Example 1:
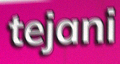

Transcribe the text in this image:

tejani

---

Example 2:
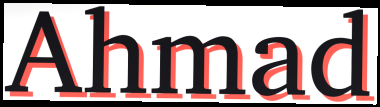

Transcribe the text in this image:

Ahmad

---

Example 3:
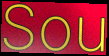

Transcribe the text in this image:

Sou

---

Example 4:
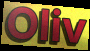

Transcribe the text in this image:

Oliv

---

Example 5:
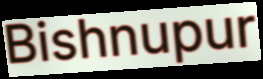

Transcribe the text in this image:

Bishnupur